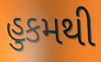
હુકમથી